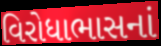
વિરોધાભાસનાં